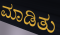
ಮಾಡಿತು